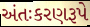
અંતઃકરણરૂપે